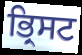
ਭ੍ਰਿਸਟ